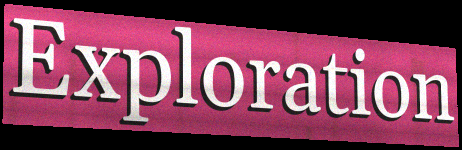
Exploration